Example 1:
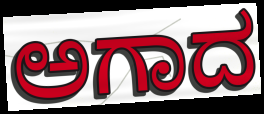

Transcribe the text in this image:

ಅಗಾದ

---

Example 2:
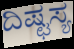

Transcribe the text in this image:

ದಿಷ್ಟಸ್ಯ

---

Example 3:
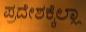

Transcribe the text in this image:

ಪ್ರದೇಶಕ್ಕೆಲ್ಲಾ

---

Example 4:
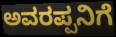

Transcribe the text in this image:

ಅವರಪ್ಪನಿಗೆ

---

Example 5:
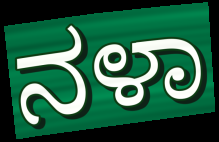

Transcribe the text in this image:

ನಳಾ